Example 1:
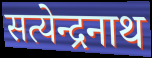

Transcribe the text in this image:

सत्येन्द्रनाथ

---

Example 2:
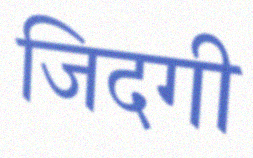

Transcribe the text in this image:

जिदगी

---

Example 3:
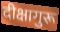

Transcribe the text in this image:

दीक्षागुरू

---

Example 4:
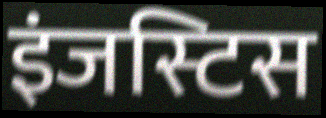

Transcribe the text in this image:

इंजस्टिस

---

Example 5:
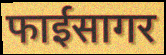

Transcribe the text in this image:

फाईसागर